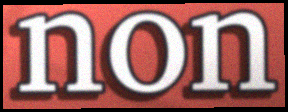
non